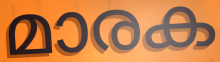
മാരക